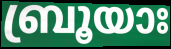
ബ്രൂയാഃ